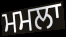
ਮਮਲਾ